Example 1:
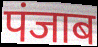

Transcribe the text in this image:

पंजाब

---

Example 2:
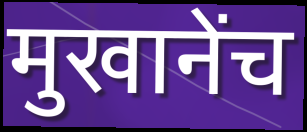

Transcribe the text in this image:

मुखानेंच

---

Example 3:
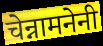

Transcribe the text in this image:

चेन्नामनेनी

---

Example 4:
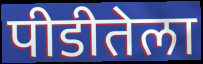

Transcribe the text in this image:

पीडीतेला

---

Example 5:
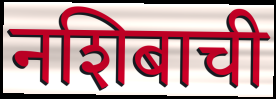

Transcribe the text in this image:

नशिबाची